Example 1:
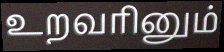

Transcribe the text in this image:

உறவரினும்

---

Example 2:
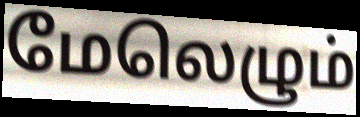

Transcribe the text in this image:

மேலெழும்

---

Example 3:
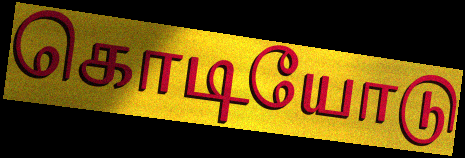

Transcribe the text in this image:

கொடியோடு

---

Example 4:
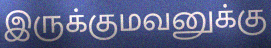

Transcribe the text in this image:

இருக்குமவனுக்கு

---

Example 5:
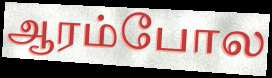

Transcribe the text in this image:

ஆரம்போல